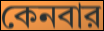
কেনবার